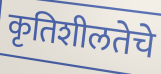
कृतिशीलतेचे